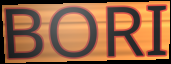
BORI